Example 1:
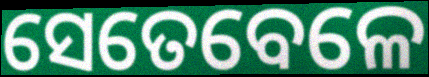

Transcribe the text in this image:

ସେତେବେଳେ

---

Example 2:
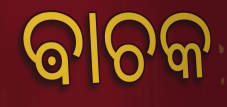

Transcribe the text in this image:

ଵାଚକ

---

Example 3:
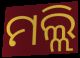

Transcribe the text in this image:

ମଲ୍ଲି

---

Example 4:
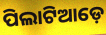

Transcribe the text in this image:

ପିଲାଟିଆଡ଼େ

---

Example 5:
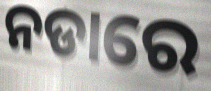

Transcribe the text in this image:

ନଡାରେ